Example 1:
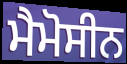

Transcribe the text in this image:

ਮੈਮੋਸੀਨ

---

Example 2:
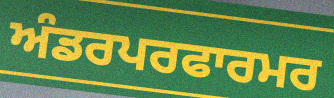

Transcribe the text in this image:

ਅੰਡਰਪਰਫਾਰਮਰ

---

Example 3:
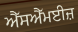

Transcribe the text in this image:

ਐੱਸਐੱਮਈਜ਼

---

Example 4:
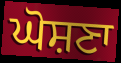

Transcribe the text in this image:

ਘੋਸ਼ਣਾ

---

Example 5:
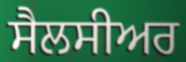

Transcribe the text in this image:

ਸੈਲਸੀਅਰ